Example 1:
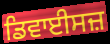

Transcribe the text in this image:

ਡਿਵਾਈਸਜ਼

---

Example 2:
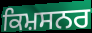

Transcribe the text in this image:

ਕਿਮ਼ਸਨਰ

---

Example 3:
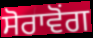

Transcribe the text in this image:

ਸੋਰਾਵੋਂਗ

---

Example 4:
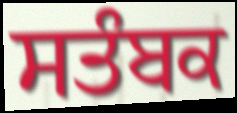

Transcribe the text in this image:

ਸਤੰਬਕ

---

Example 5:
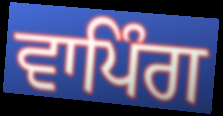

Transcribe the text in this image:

ਵਾਪਿੰਗ